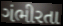
ગંભીરતા